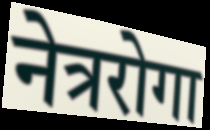
नेत्ररोगा